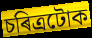
চৰিত্ৰটোক